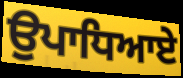
ਉਪਾਧਿਆਏ